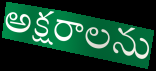
అక్షరాలను